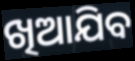
ଖିଆଯିବ